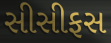
સીસીફસ